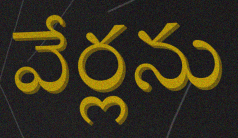
వేర్లను